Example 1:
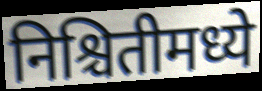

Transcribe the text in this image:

निश्चितीमध्ये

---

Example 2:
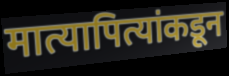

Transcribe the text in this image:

मात्यापित्यांकडून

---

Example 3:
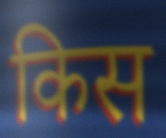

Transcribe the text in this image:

किस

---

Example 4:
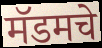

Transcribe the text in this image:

मॅडमचे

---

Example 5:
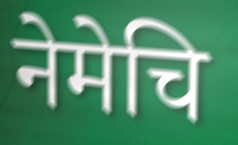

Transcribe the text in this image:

नेमेचि